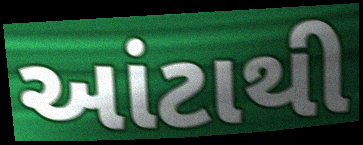
આંટાથી